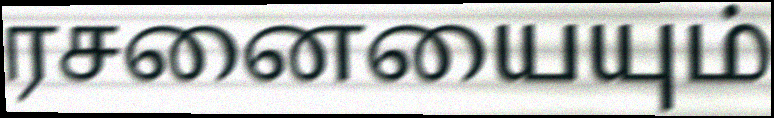
ரசனையையும்